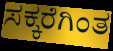
ಸಕ್ಕರೆಗಿಂತ